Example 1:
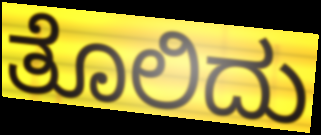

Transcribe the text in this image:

ತೊಲಿದು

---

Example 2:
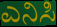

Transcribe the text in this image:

ಎನಿಸಿ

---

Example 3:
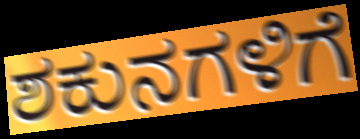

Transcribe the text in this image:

ಶಕುನಗಳಿಗೆ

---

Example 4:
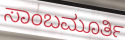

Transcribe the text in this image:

ಸಾಂಬಮೂರ್ತಿ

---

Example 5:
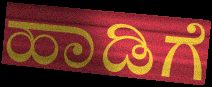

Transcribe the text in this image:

ಹಾಡಿಗೆ